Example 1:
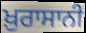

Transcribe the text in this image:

ਖ਼ੁਰਾਸਾਨੀ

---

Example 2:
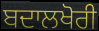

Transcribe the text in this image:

ਬਦਾਲਖੋਰੀ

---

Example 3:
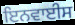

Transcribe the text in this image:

ਇਨਵਾਈਸ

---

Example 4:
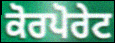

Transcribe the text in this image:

ਕੋਰਪੋਰੇਟ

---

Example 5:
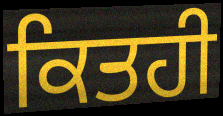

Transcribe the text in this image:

ਕਿਤਹੀ